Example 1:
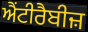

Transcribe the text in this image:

ਐਂਟੀਰੈਬੀਜ਼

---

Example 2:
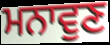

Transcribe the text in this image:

ਮਨਾਵੁਣ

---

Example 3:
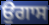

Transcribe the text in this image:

ਉਗਾਸ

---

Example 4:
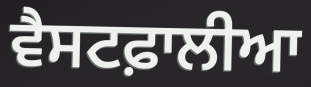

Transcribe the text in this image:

ਵੈਸਟਫ਼ਾਲੀਆ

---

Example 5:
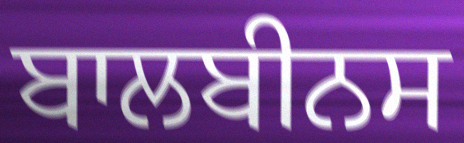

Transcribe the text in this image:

ਬਾਲਬੀਨਸ